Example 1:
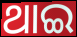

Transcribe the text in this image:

ଥାଇ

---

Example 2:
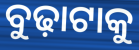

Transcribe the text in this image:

ବୁଢ଼ାଟାକୁ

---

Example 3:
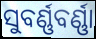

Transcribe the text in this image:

ସୁବର୍ଣ୍ଣବର୍ଣ୍ଣା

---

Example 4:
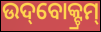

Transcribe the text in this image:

ଉଦ୍‌ବୋକ୍ଟ୍ରମ୍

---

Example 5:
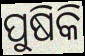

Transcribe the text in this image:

ପୁଷିକି